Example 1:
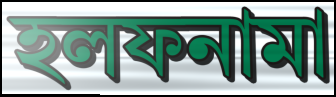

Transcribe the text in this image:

হলফনামা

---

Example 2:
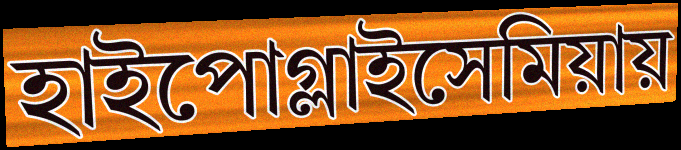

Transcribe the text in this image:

হাইপোগ্লাইসেমিয়ায়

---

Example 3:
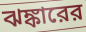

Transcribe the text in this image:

ঝঙ্কারের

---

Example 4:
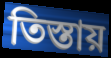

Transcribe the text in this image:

তিস্তায়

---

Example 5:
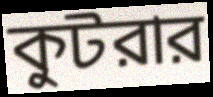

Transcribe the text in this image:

কুটরার